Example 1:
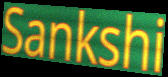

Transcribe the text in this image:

Sankshi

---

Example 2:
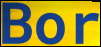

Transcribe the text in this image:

Bor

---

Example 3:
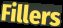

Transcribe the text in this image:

Fillers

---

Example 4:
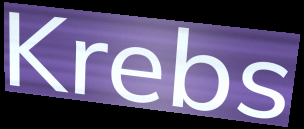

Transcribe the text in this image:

Krebs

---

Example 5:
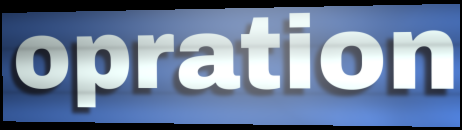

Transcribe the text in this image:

opration